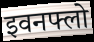
इवनफ्लो